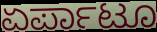
ಏರ್ಪಾಟೂ